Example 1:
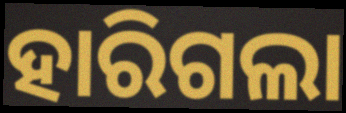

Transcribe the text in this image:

ହାରିଗଲା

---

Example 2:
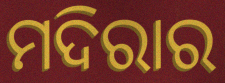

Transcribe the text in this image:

ମଦିରାର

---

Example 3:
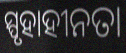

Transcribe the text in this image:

ସ୍ପୃହାହୀନତା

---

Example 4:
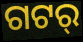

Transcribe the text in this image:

ଗଟର୍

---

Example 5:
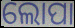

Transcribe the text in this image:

ଲୋପା